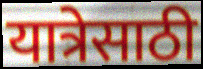
यात्रेसाठी